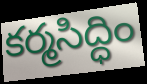
కర్మసిద్ధిం